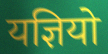
यज्ञियो